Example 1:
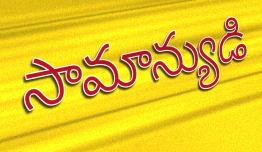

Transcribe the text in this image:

సామాన్యుడి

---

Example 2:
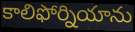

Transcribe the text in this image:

కాలిఫోర్నియాను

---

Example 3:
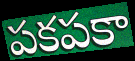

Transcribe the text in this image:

పకపకా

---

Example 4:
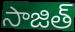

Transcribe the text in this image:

సాజిత్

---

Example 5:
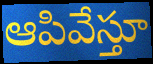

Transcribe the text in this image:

ఆపివేస్తూ